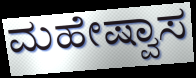
ಮಹೇಷ್ವಾಸ